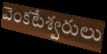
వెంకటేశ్వరులు